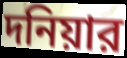
দনিয়ার